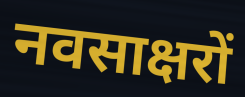
नवसाक्षरों